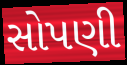
સોપણી